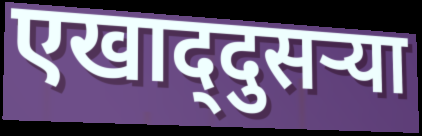
एखाद्‌दुसऱ्या